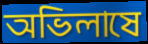
অভিলাষে